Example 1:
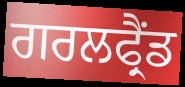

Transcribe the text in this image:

ਗਰਲਫ੍ਰੈਂਡ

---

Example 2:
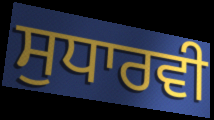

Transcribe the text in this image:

ਸੁਧਾਰਵੀ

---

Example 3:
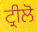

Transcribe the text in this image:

ਟ੍ਰੀਲੋ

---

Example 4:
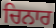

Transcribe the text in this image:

ਚਿਨਾਰ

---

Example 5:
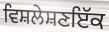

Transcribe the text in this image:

ਵਿਸ਼ਲੇਸ਼ਣਇੱਕ